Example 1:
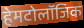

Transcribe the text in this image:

हेमटोलॉजिक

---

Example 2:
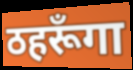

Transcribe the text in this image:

ठहरूँगा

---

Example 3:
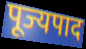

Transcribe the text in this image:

पूज्यपाद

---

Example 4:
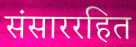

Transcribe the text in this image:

संसाररहित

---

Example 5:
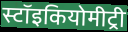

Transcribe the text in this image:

स्टॉइकियोमीट्री